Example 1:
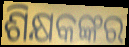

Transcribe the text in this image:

ଶିକ୍ଷକଙ୍କର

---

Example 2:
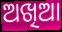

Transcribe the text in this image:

ଅଖିଆ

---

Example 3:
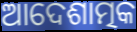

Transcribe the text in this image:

ଆଦେଶାତ୍ମକ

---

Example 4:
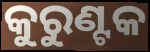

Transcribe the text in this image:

କୁରୁଣ୍ଟକ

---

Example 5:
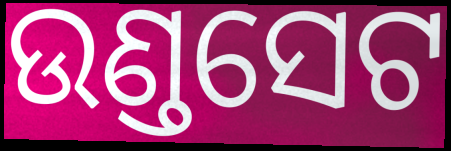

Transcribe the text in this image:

ଉଣ୍ଡସେଟ